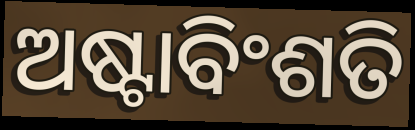
ଅଷ୍ଟାବିଂଶତି